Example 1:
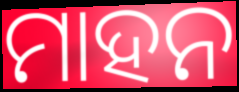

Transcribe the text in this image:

ମାହନ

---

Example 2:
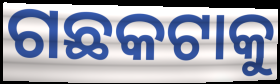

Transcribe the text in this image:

ଗଛକଟାକୁ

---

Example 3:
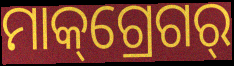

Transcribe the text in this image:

ମାକ୍‌ଗ୍ରେଗର୍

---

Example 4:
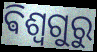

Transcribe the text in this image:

ଵିଶ୍ଵଗୁରୁ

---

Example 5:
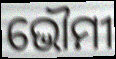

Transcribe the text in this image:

ଭୌମୀ